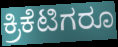
ಕ್ರಿಕೆಟಿಗರೂ